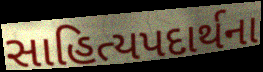
સાહિત્યપદાર્થના